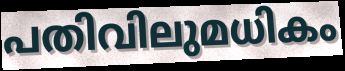
പതിവിലുമധികം